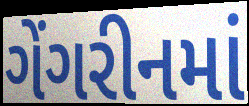
ગેંગરીનમાં